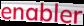
enabler